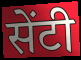
सेंटी